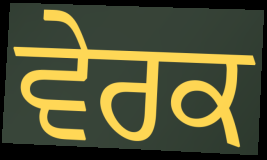
ਵੇਰਕ